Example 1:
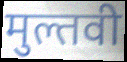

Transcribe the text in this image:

मुल्तवी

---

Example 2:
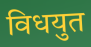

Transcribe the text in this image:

विधयुत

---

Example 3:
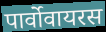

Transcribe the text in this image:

पार्वोवायरस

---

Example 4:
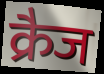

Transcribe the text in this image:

क्रैज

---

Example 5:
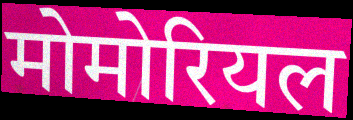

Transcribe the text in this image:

मोमोरियल